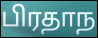
பிரதாந